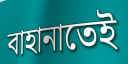
বাহানাতেই